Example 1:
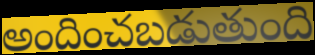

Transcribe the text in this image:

అందించబడుతుంది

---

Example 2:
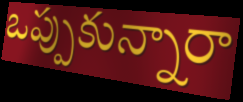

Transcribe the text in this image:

ఒప్పుకున్నారా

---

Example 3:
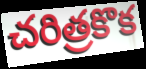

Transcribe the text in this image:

చరిత్రకొక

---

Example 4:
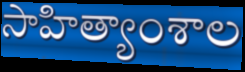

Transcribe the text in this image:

సాహిత్యాంశాల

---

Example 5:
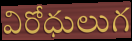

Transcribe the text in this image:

విరోధులుగ